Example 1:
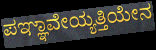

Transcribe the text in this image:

ಪಞ್ಞಾವೇಯ್ಯತ್ತಿಯೇನ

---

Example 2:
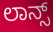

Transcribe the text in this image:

ಲಾನ್ಸ್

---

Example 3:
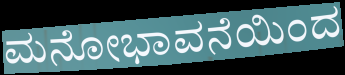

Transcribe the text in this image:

ಮನೋಭಾವನೆಯಿಂದ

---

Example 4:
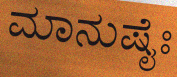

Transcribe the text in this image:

ಮಾನುಷೈಃ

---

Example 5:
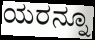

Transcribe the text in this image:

ಯರನ್ನೂ